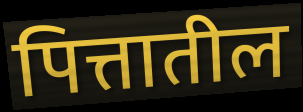
पित्तातील